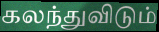
கலந்துவிடும்